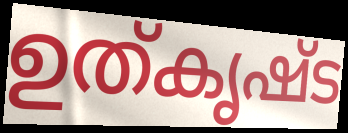
ഉത്കൃഷ്ട